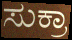
ಸುಕ್ರಾ